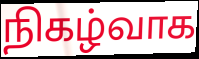
நிகழ்வாக